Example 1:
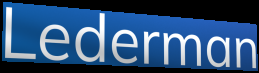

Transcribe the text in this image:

Lederman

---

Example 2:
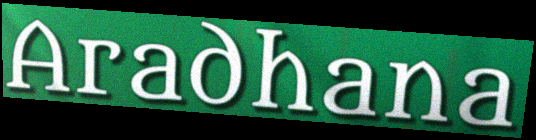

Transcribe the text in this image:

Aradhana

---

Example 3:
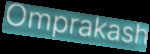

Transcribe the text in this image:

Omprakash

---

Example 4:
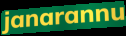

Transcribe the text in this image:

janarannu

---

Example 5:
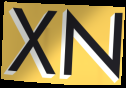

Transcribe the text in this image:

XN